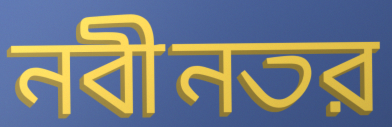
নবীনতর